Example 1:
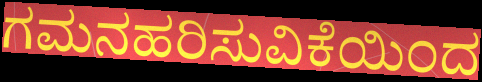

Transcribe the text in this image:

ಗಮನಹರಿಸುವಿಕೆಯಿಂದ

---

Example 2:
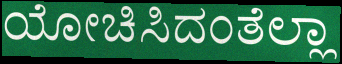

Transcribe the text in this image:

ಯೋಚಿಸಿದಂತೆಲ್ಲಾ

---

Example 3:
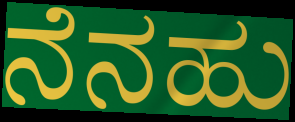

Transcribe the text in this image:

ನೆನಹು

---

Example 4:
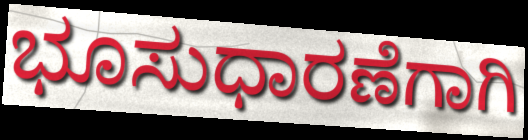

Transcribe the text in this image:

ಭೂಸುಧಾರಣೆಗಾಗಿ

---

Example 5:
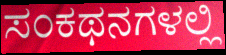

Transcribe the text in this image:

ಸಂಕಥನಗಳಲ್ಲಿ